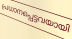
പ്രധാനപ്പെട്ടവയായി